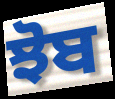
ਝੋਬ